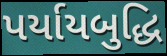
પર્યાયબુદ્ધિ